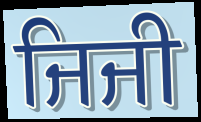
ਜਿਜੀ